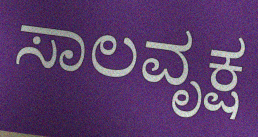
ಸಾಲವೃಕ್ಷ